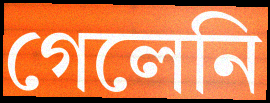
গেলেনি